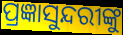
ପ୍ରଜ୍ଞାସୁନ୍ଦରୀଙ୍କୁ